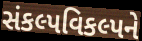
સંકલ્પવિકલ્પને